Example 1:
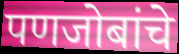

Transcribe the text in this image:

पणजोबांचे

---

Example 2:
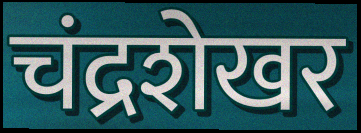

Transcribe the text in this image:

चंद्रशेखर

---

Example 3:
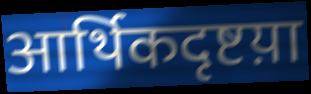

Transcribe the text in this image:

आर्थिकदृष्टय़ा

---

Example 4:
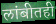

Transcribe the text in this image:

लांबीतही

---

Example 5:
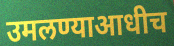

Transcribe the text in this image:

उमलण्याआधीच